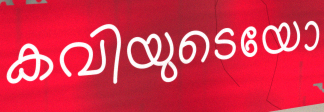
കവിയുടെയോ